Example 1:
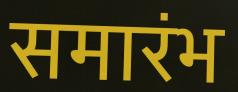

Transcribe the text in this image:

समारंभ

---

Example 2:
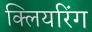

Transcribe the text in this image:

क्लियरिंग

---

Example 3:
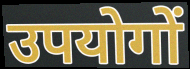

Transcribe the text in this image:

उपयोगों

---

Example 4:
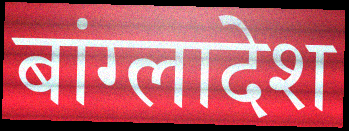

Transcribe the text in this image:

बांग्लादेश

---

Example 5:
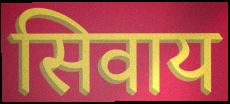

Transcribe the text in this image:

सिवाय